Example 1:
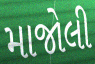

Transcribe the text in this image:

માજોલી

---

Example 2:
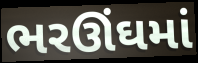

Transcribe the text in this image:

ભરઊંઘમાં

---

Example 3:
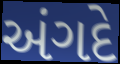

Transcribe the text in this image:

અંગદે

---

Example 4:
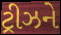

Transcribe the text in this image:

ટ્રીઝને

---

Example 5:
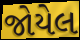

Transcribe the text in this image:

જોયેલ